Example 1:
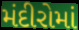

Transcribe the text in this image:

મંદીરોમાં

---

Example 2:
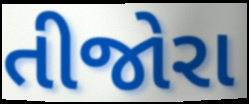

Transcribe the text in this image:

તીજોરા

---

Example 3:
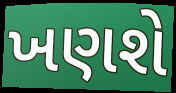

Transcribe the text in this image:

ખણશે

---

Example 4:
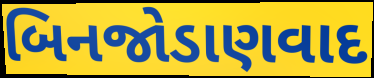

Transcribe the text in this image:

બિનજોડાણવાદ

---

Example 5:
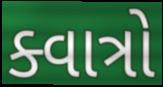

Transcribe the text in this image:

ક્વાત્રો